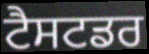
ਟੈਸਟਡਰ